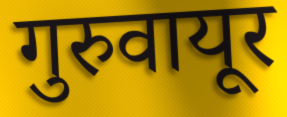
गुरुवायूर